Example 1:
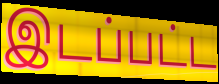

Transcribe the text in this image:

இடப்பட்ட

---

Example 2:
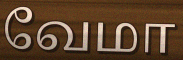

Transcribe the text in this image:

வேமா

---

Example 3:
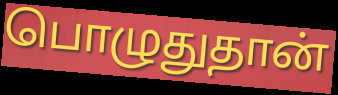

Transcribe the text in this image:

பொழுதுதான்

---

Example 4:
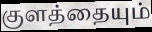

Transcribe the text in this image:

குளத்தையும்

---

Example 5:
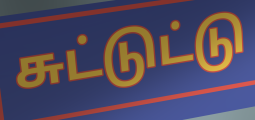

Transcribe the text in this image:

சுட்டுட்டு